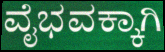
ವೈಭವಕ್ಕಾಗಿ